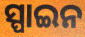
ସ୍ପାଇନ